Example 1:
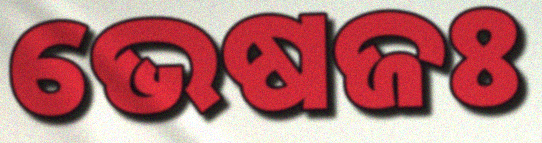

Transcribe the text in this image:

ଭେଷଜଃ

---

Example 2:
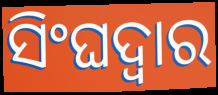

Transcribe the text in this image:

ସିଂଘଦ୍ୱାର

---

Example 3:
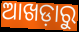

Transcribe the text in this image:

ଆଖଡ଼ାରୁ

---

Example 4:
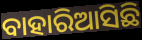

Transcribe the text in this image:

ବାହାରିଆସିଛି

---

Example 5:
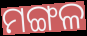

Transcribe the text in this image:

ମଙ୍ଗଳ